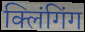
क्लिंगिंग